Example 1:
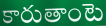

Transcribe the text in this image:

కారుతాంటె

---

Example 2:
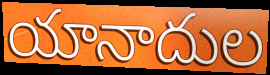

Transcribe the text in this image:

యానాదుల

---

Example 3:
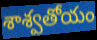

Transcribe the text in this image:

శాశ్వతోయం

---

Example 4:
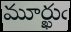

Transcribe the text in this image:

మూర్ఖుఁ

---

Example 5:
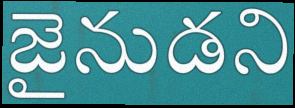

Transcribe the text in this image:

జైనుడని